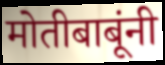
मोतीबाबूंनी